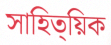
সাহিত্য়িক